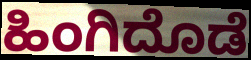
ಹಿಂಗಿದೊಡೆ